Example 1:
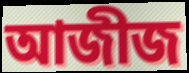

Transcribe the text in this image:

আজীজ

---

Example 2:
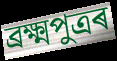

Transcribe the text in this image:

ব্ৰক্ষ্মপুত্ৰৰ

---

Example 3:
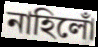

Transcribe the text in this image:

নাহিলোঁ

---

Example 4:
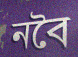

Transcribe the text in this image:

নবৈ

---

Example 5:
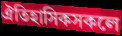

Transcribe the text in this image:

ঐতিহাসিকসকলে